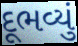
દૂભવ્યું